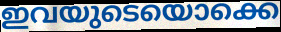
ഇവയുടെയൊക്കെ